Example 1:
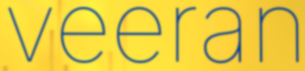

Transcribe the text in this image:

veeran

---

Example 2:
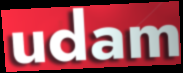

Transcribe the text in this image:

udam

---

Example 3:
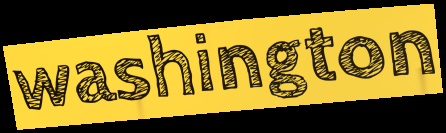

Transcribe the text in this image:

washington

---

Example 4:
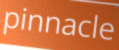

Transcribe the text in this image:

pinnacle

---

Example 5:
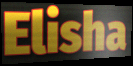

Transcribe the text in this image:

Elisha